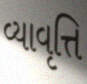
વ્યાવૃત્તિ